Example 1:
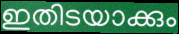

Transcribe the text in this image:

ഇതിടയാക്കും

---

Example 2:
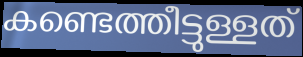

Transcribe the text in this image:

കണ്ടെത്തീട്ടുള്ളത്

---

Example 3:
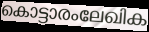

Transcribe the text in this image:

കൊട്ടാരംലേഖിക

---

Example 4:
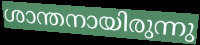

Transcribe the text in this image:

ശാന്തനായിരുന്നു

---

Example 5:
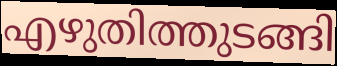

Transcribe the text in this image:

എഴുതിത്തുടങ്ങി